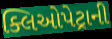
ક્લિઓપેટ્રાની